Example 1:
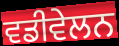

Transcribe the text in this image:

ਵਡੀਵੇਲਨ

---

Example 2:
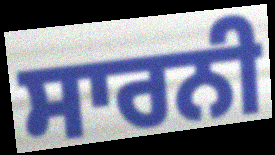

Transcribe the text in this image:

ਸਾਰਨੀ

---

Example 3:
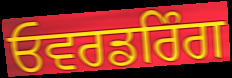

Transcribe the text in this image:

ਓਵਰਡਰਿੰਗ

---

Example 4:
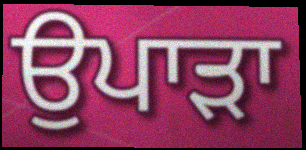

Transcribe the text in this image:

ਉਪਾੜਾ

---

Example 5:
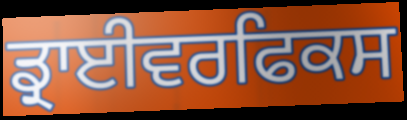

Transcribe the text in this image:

ਡ੍ਰਾਈਵਰਫਿਕਸ